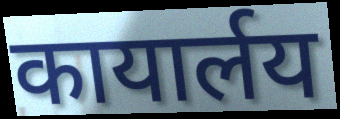
कायार्लय